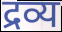
द्रव्य